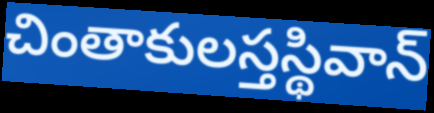
చింతాకులస్తస్థివాన్